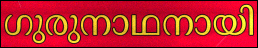
ഗുരുനാഥനായി